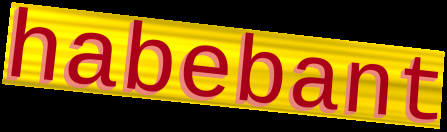
habebant